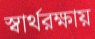
স্বার্থরক্ষায়